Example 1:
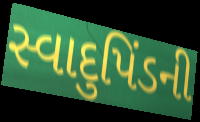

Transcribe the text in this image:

સ્વાદુપિંડની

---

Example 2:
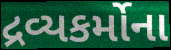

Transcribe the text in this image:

દ્રવ્યકર્મોના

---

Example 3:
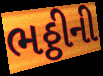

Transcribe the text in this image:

ભઠ્ઠીની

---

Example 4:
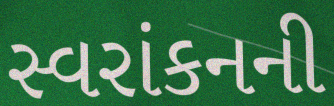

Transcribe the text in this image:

સ્વરાંકનની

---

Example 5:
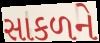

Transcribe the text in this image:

સાકળને